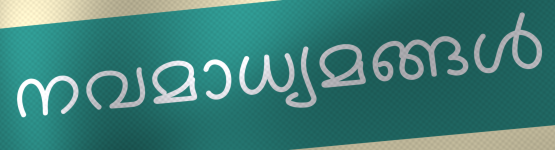
നവമാധ്യമങ്ങൾ